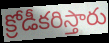
క్రోడీకరిస్తారు